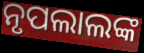
ନୃପଲାଲଙ୍କ